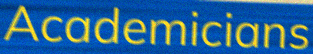
Academicians